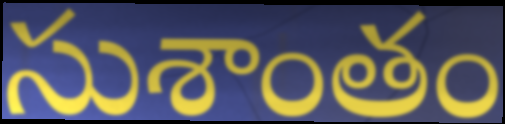
సుశాంతం